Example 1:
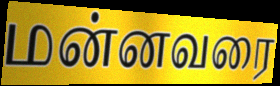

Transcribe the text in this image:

மன்னவரை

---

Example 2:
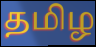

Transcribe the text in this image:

தமிழ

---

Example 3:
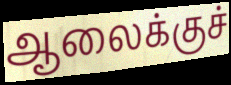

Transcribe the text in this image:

ஆலைக்குச்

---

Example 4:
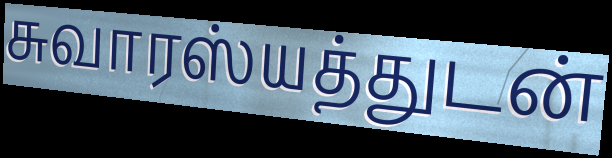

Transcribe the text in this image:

சுவாரஸ்யத்துடன்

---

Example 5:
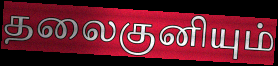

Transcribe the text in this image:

தலைகுனியும்